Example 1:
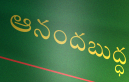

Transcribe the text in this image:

ఆనందబుద్ధ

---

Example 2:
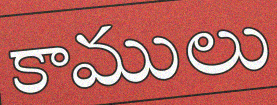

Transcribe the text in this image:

కాములు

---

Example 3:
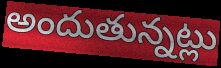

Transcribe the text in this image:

అందుతున్నట్లు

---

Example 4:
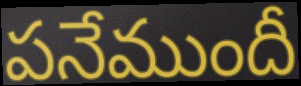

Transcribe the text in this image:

పనేముందీ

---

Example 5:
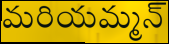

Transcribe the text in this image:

మరియమ్మన్